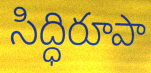
సిద్ధిరూపా